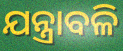
ଯନ୍ତ୍ରାବଳି